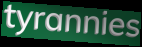
tyrannies